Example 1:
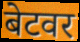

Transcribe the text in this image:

बेटवर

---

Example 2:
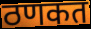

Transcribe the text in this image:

ठणकत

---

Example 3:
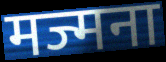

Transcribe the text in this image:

मज्मना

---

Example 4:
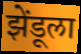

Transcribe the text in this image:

झेंडूला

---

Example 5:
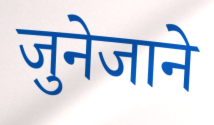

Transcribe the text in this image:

जुनेजाने